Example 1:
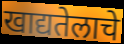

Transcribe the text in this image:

खाद्यतेलाचे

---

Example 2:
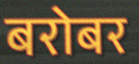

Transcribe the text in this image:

बरोबर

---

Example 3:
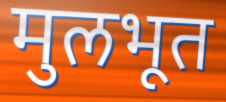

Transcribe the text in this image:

मुलभूत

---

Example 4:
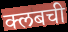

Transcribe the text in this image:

क्लबची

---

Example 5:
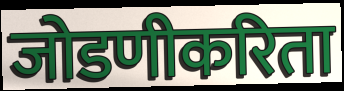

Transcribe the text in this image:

जोडणीकरिता